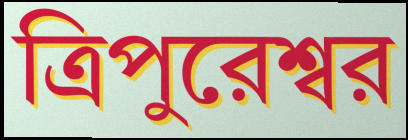
ত্রিপুরেশ্বর